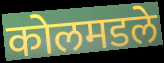
कोलमडले